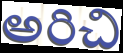
అరిచి